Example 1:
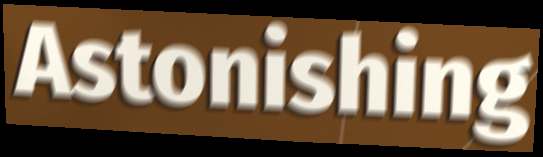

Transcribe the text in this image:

Astonishing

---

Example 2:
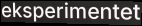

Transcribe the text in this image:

eksperimentet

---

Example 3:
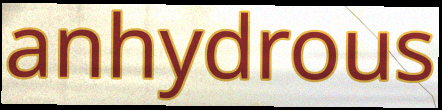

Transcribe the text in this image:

anhydrous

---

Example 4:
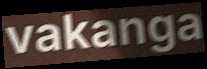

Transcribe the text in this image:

vakanga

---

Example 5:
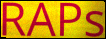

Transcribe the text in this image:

RAPs